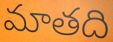
మాతది